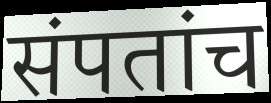
संपतांच